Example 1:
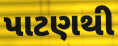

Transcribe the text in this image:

પાટણથી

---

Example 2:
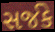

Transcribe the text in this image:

સર્જકે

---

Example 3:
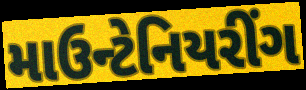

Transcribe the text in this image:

માઉન્ટેનિયરીંગ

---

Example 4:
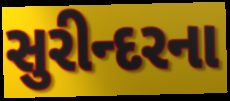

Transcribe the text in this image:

સુરીન્દરના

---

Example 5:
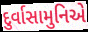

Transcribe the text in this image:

દુર્વાસામુનિએ